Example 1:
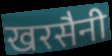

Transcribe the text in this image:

खरसैनी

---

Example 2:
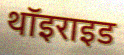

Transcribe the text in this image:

थॉइराइड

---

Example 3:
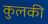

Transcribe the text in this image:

कुलकी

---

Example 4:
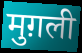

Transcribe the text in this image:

मुग़ली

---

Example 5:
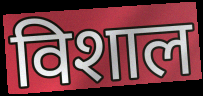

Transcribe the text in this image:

विशाल